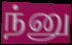
ந்னு